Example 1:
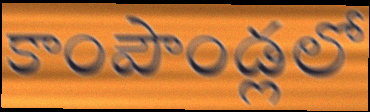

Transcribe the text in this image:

కాంపౌండ్లలో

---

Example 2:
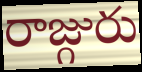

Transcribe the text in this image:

రాజ్గురు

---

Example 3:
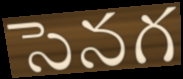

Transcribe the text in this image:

సెనగ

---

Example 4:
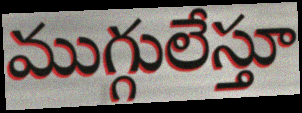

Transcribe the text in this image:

ముగ్గులేస్తూ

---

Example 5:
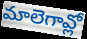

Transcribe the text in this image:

మాలెగావ్లో